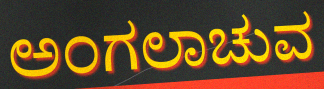
ಅಂಗಲಾಚುವ